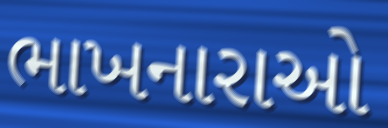
ભાખનારાઓ